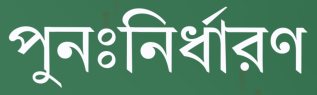
পুনঃনির্ধারণ